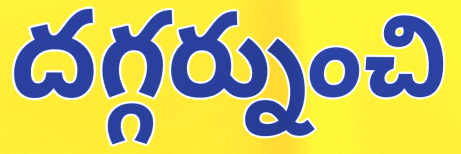
దగ్గర్నుంచి